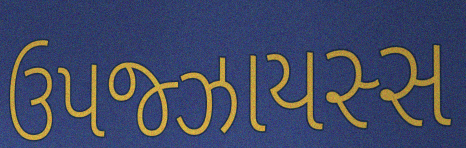
ઉપજ્ઝાયસ્સ